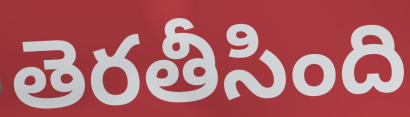
తెరతీసింది